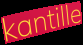
kantille